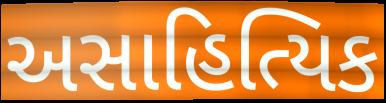
અસાહિત્યિક